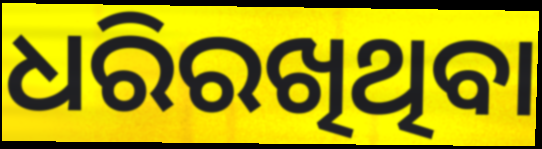
ଧରିରଖିଥିବା